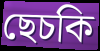
ছেচকি